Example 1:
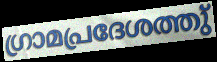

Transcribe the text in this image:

ഗ്രാമപ്രദേശത്തു്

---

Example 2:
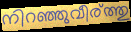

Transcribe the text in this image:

നിറഞ്ഞുവീര്ത്തു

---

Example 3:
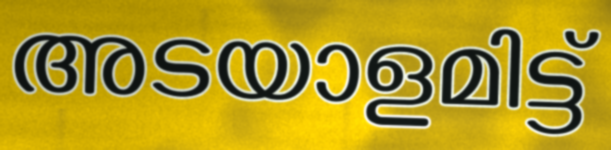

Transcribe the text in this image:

അടയാളമിട്ട്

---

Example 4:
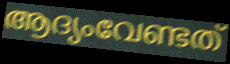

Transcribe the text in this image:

ആദ്യംവേണ്ടത്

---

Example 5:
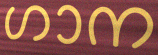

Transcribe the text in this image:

ഗാന